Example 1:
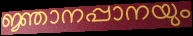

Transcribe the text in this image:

ജ്ഞാനപ്പാനയും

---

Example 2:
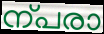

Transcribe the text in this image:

ന്പരാ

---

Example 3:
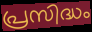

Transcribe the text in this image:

പ്രസിദ്ധം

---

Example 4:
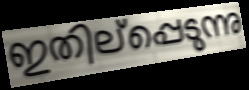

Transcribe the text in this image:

ഇതില്പ്പെടുന്നു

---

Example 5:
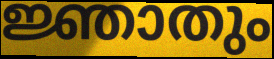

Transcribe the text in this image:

ജ്ഞാതും